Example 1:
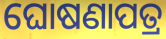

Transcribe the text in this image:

ଘୋଷଣାପତ୍ର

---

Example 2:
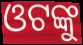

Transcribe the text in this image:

ଓଟଙ୍କୁ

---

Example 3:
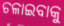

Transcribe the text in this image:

ଚଳାଇବାକୁ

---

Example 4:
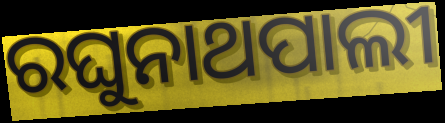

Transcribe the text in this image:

ରଘୁନାଥପାଲୀ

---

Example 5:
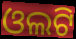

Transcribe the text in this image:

ଓଲଟି